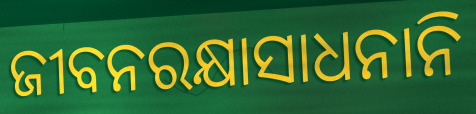
ଜୀବନରକ୍ଷାସାଧନାନି